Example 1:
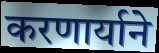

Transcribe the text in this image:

करणार्याने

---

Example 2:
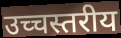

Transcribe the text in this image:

उच्चस्तरीय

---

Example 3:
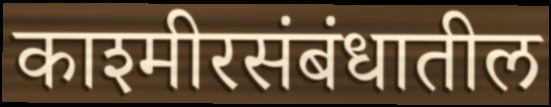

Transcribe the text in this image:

काश्मीरसंबंधातील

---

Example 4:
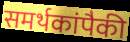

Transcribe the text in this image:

समर्थकांपैकी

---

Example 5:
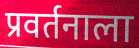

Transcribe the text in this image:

प्रवर्तनाला